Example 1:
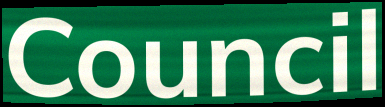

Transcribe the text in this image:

Council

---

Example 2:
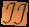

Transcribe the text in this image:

JJ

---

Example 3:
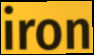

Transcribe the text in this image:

iron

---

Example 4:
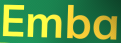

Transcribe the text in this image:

Emba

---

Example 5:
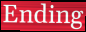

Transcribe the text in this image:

Ending